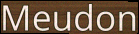
Meudon